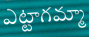
ఎట్టాగమ్మా